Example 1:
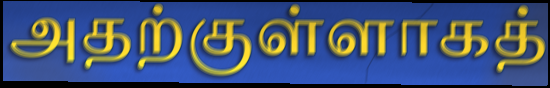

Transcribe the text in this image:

அதற்குள்ளாகத்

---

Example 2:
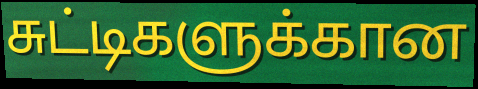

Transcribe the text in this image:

சுட்டிகளுக்கான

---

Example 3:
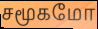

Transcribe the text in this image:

சமூகமோ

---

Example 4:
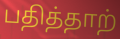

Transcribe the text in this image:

பதித்தாற்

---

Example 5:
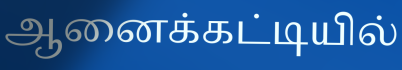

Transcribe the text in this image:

ஆனைக்கட்டியில்